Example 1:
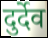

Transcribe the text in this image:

दुर्देव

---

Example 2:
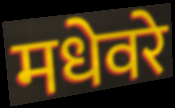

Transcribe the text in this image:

मधेवरे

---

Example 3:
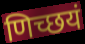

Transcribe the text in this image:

णिच्छयं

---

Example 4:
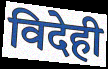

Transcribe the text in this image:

विदेही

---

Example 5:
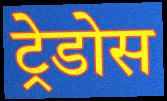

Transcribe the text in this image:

ट्रेडोस